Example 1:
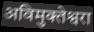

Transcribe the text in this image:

अविमुक्तेश्वरा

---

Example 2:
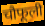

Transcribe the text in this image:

चौफूली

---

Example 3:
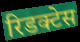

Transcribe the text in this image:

रिडक्टेस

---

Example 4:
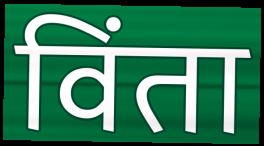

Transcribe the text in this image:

विंता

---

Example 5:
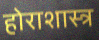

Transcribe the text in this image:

होराशास्त्र